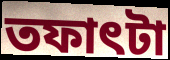
তফাৎটা